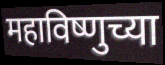
महाविष्णुच्या